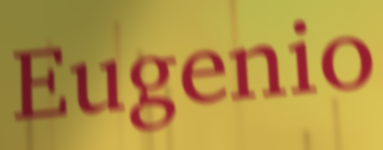
Eugenio